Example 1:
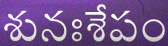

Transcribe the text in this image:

శునఃశేపం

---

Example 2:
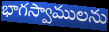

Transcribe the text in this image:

భాగస్వాములను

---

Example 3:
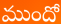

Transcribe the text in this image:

ముందో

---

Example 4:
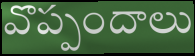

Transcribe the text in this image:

వొప్పందాలు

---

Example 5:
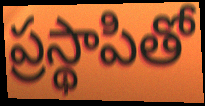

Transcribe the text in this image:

ప్రస్థాపితో